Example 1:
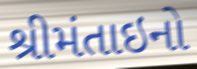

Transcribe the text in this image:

શ્રીમંતાઇનો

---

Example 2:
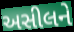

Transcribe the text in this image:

અસીલને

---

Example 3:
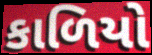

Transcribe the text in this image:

કાળિયો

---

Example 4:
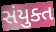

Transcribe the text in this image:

સંયુક્ત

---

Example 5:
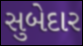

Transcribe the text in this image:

સુબેદાર